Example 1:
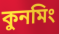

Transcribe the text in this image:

কুনমিং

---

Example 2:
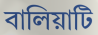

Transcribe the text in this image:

বালিয়াটি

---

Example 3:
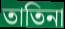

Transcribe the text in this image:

তাতিনা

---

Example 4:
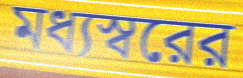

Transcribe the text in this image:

মধ্যস্বরের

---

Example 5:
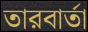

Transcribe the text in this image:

তারবার্তা